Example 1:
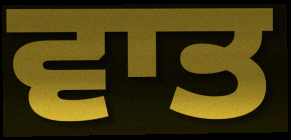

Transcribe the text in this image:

ਵਾਤ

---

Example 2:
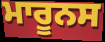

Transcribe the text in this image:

ਮਾਰੂਨਸ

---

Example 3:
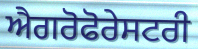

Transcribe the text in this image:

ਐਗਰੋਫੋਰੇਸਟਰੀ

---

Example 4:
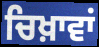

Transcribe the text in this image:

ਚਿਖ਼ਾਵਾਂ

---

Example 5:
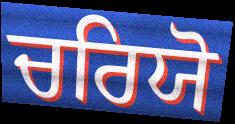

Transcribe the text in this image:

ਚਰਿਯੋ